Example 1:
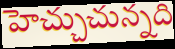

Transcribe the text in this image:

హెచ్చుచున్నది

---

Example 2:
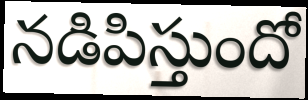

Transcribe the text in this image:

నడిపిస్తుందో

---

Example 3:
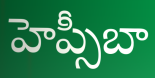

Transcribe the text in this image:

హెప్సీబా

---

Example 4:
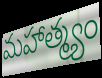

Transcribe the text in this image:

మహాత్మ్యం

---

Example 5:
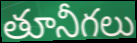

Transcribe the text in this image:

తూనీగలు